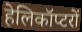
हेलिकॉप्टरों